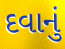
દવાનું